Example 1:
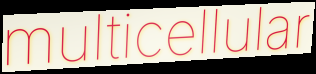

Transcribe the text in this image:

multicellular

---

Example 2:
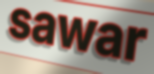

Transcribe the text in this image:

sawar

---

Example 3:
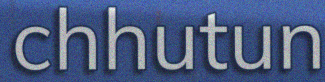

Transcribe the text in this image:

chhutun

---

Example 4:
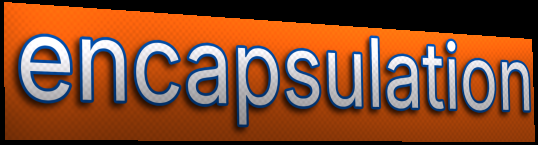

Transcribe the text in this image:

encapsulation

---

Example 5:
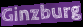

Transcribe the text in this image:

Ginzburg